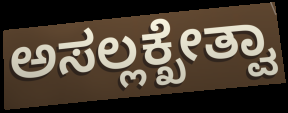
ಅಸಲ್ಲಕ್ಖೇತ್ವಾ